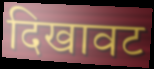
दिखावट